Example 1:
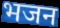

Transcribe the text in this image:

भजन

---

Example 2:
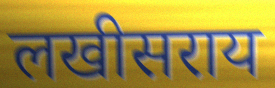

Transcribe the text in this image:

लखीसराय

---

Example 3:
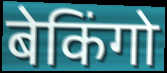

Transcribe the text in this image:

बेकिंगो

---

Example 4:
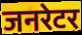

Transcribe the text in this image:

जनरेटर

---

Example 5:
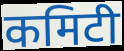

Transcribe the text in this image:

कमिटी